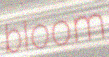
bloom